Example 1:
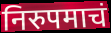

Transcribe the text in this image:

निरुपमाचं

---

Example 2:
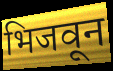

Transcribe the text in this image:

भिजवून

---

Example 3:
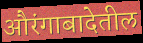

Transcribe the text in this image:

औरंगाबादेतील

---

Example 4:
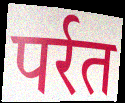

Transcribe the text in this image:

पर्रत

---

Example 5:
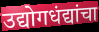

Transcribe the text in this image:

उद्योगधंद्यांचा